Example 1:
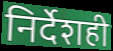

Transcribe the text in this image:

निर्देशही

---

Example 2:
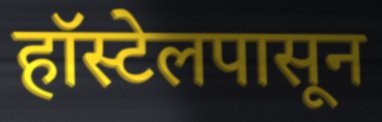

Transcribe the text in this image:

हॉस्टेलपासून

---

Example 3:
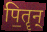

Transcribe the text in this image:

पि॒तॄन्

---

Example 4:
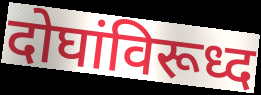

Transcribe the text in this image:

दोघांविरूध्द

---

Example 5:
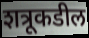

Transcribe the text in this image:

शत्रूकडील